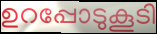
ഉറപ്പോടുകൂടി